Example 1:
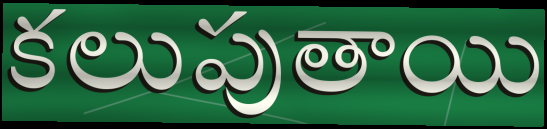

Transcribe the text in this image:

కలుపుతాయి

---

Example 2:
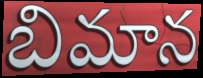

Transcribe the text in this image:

బిమాన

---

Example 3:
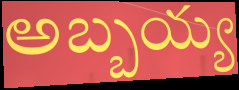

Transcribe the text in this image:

అబ్బయ్య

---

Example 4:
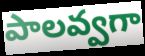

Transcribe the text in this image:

పాలవ్వగా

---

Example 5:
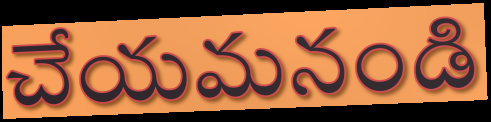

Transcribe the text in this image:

చేయమనండి